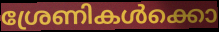
ശ്രേണികൾക്കൊ